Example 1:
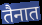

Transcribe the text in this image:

तैनात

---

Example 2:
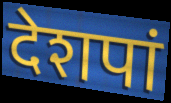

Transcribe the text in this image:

देशपां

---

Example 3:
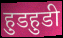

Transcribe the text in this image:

हुडहुडी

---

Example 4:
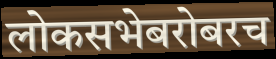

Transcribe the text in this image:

लोकसभेबरोबरच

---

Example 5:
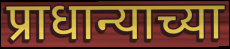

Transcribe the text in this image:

प्राधान्याच्या